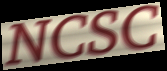
NCSC